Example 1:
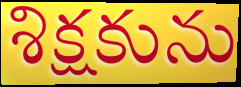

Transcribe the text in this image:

శిక్షకును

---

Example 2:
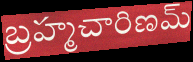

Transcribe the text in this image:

బ్రహ్మచారిణమ్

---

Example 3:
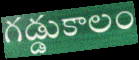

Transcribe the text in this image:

గడ్డుకాలం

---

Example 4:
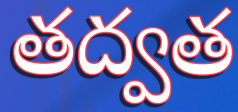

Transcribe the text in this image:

తద్వత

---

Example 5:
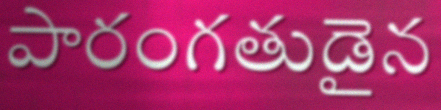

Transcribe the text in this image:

పారంగతుడైన